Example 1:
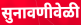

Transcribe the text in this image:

सुनावणीवेळी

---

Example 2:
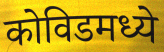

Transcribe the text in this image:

कोविडमध्ये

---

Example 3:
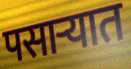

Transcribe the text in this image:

पसार्‍यात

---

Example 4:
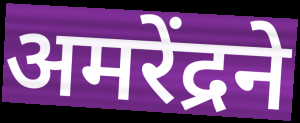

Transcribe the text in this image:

अमरेंद्रने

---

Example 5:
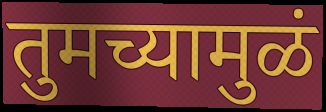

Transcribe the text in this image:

तुमच्यामुळं